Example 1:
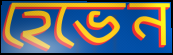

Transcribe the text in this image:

হেভেন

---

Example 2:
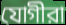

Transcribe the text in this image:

যোগীরা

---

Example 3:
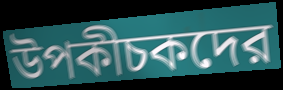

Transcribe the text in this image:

উপকীচকদের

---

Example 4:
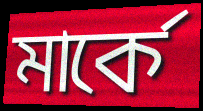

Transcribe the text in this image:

মার্কে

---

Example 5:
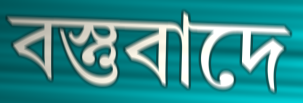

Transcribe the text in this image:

বস্তুবাদে